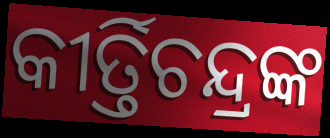
କୀର୍ତ୍ତିଚନ୍ଦ୍ରଙ୍କ